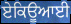
ਏਕਿਊਆਈ